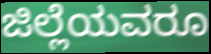
ಜಿಲ್ಲೆಯವರೂ